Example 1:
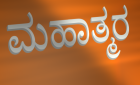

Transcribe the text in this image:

ಮಹಾತ್ಮರ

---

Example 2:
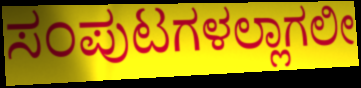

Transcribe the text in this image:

ಸಂಪುಟಗಳಲ್ಲಾಗಲೀ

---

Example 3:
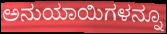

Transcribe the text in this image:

ಅನುಯಾಯಿಗಳನ್ನೂ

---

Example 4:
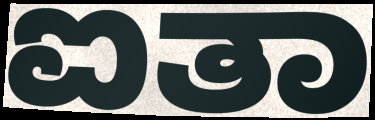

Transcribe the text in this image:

ಐತಾ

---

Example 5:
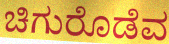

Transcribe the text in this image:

ಚಿಗುರೊಡೆವ